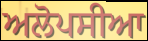
ਅਲੋਪਸੀਆ